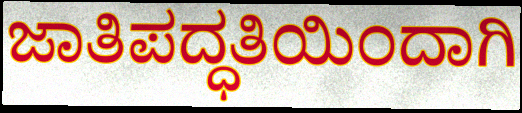
ಜಾತಿಪದ್ಧತಿಯಿಂದಾಗಿ